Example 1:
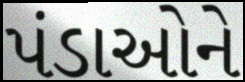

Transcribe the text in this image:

પંડાઓને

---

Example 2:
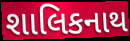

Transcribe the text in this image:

શાલિકનાથ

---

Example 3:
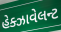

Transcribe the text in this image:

હેક્ઝાવેલન્ટ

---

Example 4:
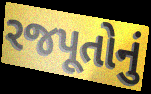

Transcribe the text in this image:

રજપૂતોનું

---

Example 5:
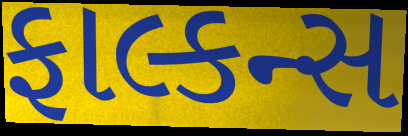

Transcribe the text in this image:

ફાલ્કન્સ